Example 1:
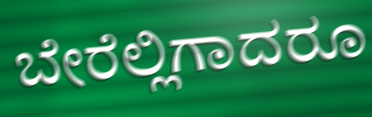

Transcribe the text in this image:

ಬೇರೆಲ್ಲಿಗಾದರೂ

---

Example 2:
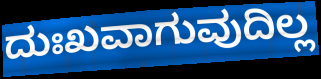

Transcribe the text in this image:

ದುಃಖವಾಗುವುದಿಲ್ಲ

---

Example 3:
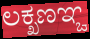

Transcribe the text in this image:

ಲಕ್ಖಣಞ್ಚ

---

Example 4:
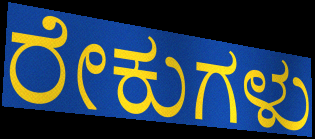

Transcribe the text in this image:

ರೇಕುಗಳು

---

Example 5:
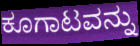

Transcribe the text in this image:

ಕೂಗಾಟವನ್ನು